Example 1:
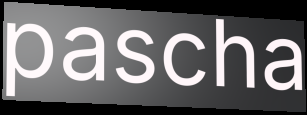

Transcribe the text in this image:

pascha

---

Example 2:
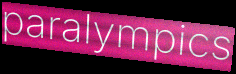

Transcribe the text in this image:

paralympics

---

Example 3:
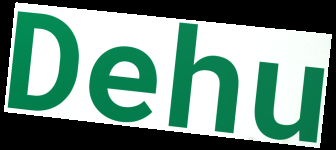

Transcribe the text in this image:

Dehu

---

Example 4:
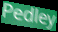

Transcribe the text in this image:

Pedley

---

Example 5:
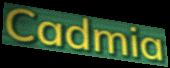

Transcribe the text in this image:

Cadmia